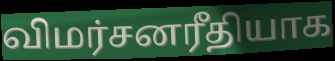
விமர்சனரீதியாக